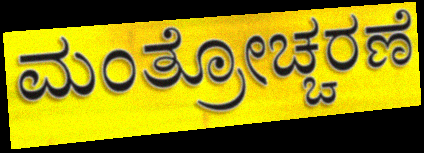
ಮಂತ್ರೋಚ್ಚರಣೆ